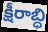
క్షీరాబ్ధి